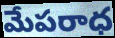
మేపరాధ